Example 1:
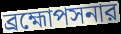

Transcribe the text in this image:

ব্রহ্মোপসনার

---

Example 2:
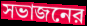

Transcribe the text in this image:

সভাজনের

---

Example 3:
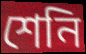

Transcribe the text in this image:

শেনি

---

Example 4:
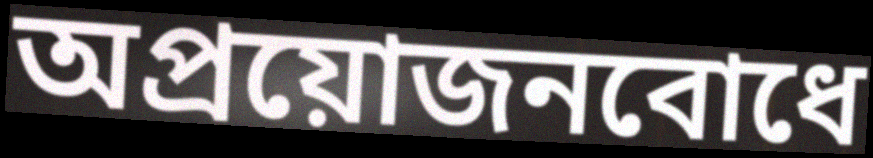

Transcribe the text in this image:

অপ্রয়োজনবোধে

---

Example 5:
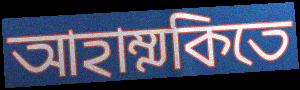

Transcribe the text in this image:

আহাম্মকিতে